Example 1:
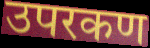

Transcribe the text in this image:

उपरकण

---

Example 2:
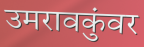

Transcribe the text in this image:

उमरावकुंवर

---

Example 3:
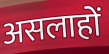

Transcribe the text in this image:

असलाहों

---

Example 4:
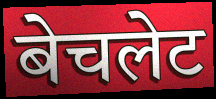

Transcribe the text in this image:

बेचलेट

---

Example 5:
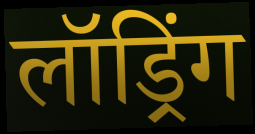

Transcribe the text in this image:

लॉड्रिंग